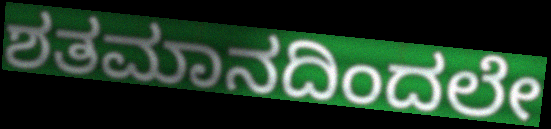
ಶತಮಾನದಿಂದಲೇ